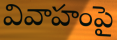
వివాహంపై